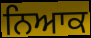
ਨਿਆਕ